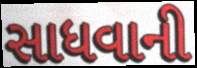
સાધવાની